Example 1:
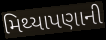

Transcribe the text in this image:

મિથ્યાપણાની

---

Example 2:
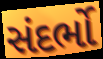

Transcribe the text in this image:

સંદર્ભો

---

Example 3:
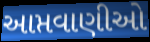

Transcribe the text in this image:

આપ્તવાણીઓ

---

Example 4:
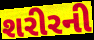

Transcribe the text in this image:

શરીરની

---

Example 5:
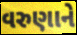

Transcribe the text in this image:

વરુણાને